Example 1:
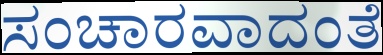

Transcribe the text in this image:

ಸಂಚಾರವಾದಂತೆ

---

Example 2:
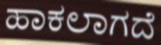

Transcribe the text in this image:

ಹಾಕಲಾಗದೆ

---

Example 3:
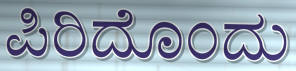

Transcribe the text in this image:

ಪಿರಿದೊಂದು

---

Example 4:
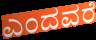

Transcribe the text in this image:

ಎಂದವರೆ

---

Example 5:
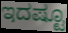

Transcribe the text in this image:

ಇದಷ್ಟೂ